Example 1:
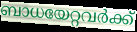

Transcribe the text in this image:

ബാധയേറ്റവർക്ക്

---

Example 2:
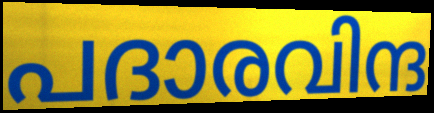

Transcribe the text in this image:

പദാരവിന്ദ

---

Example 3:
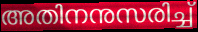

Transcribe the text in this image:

അതിനനുസരിച്ച്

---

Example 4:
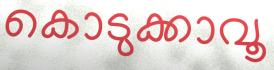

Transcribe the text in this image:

കൊടുക്കാവൂ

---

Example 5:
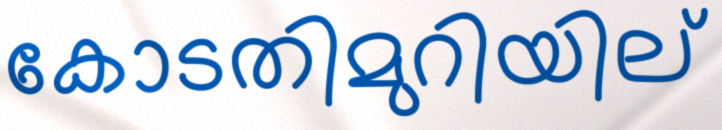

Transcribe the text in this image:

കോടതിമുറിയില്